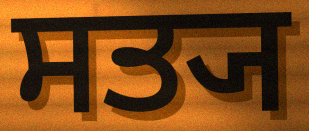
ਸਤ੍ਯ